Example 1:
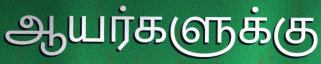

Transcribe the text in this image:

ஆயர்களுக்கு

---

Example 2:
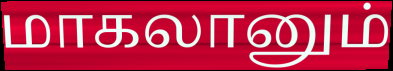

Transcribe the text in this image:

மாகலானும்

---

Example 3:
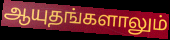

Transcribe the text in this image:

ஆயுதங்களாலும்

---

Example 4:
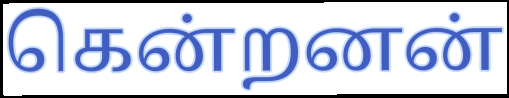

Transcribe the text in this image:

கென்றனன்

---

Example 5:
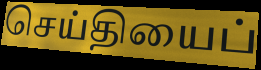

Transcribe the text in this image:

செய்தியைப்